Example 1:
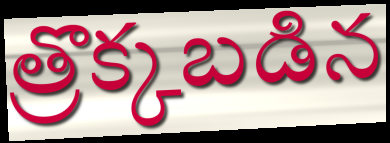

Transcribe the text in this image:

త్రొక్కబడిన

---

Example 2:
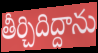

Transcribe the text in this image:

తీర్చిదిద్దాను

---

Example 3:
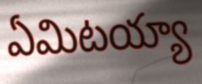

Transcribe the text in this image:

ఏమిటయ్యా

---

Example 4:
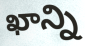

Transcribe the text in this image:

ఖాన్ని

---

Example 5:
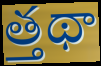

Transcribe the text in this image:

త్తథా